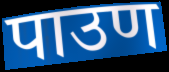
पाउण